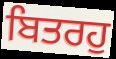
ਬਿਤਰਹੁ